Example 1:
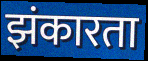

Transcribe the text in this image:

झंकारता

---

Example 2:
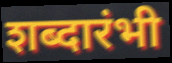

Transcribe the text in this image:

शब्दारंभी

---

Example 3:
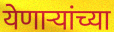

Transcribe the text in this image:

येणाऱ्यांच्या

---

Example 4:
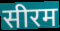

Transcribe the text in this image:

सीरम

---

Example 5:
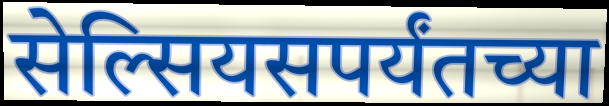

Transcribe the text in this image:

सेल्सियसपर्यंतच्या